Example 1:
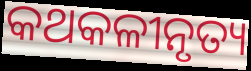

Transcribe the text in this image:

କଥକଳୀନୃତ୍ୟ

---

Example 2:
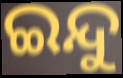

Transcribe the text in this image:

ଇନ୍ଦୁ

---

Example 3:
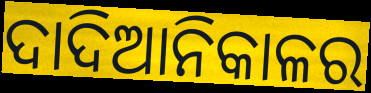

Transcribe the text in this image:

ଦାଦିଆନିକାଳର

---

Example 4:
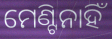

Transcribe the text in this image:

ମେଣ୍ଟିନାହିଁ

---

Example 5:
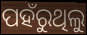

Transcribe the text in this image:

ପହଁରୁଥିଲୁ